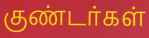
குண்டர்கள்